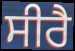
ਸੀਰੈ